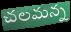
చలమన్న